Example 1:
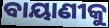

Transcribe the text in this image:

ବାୟାଣୀକୁ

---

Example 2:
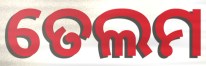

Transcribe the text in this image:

ତେଲମ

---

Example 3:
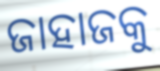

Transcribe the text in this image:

ଜାହାଜକୁ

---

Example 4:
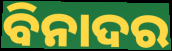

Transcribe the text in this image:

ବିନାଦର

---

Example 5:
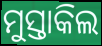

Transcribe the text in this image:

ମୁସ୍ତାକିଲ